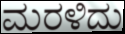
ಮರಳಿದು